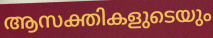
ആസക്തികളുടെയും